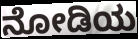
ನೋಡಿಯ